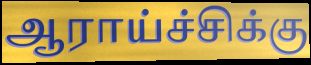
ஆராய்ச்சிக்கு